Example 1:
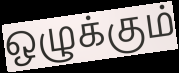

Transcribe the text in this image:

ஒழுக்கும்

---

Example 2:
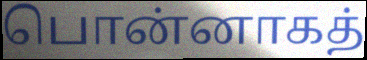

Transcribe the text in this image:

பொன்னாகத்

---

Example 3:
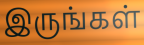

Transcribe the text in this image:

இருங்கள்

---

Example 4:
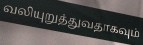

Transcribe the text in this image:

வலியுறுத்துவதாகவும்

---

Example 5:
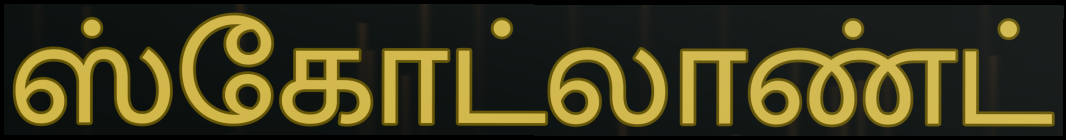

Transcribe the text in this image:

ஸ்கோட்லாண்ட்